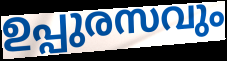
ഉപ്പുരസവും